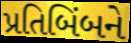
પ્રતિબિંબને